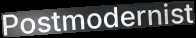
Postmodernist